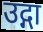
उद्गा